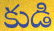
కుడి